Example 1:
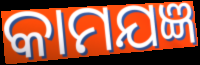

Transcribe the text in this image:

କାମଯଜ୍ଞ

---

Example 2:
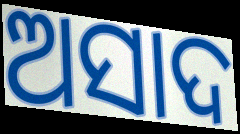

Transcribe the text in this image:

ଅସାଦ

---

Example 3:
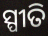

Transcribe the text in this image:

ସ୍ପୀତି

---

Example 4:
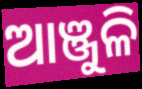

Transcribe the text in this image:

ଆଞ୍ଜୁଳି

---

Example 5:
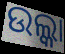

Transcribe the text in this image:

ଉଲ୍କା